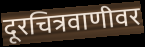
दूरचित्रवाणीवर